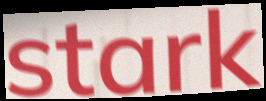
stark